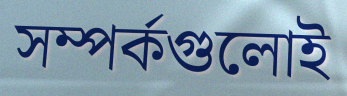
সম্পর্কগুলোই